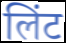
लिंट